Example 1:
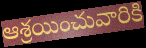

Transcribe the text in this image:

ఆశ్రయించువారికి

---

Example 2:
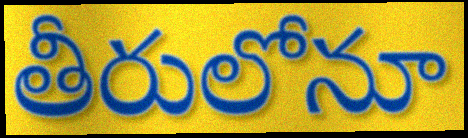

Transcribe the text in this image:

తీరులోనూ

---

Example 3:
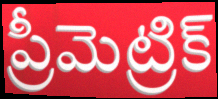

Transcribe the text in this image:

ప్రీమెట్రిక్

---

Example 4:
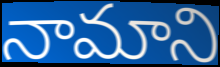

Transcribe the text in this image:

నామాని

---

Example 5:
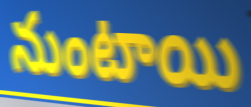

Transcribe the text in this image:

నుంటాయి